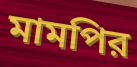
মামপির